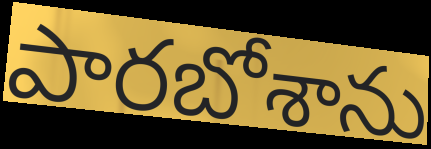
పారబోశాను